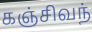
கஞ்சிவந்